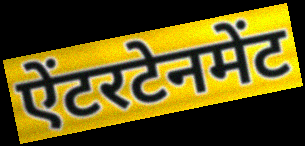
ऐंटरटेनमेंट